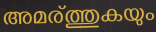
അമര്ത്തുകയും